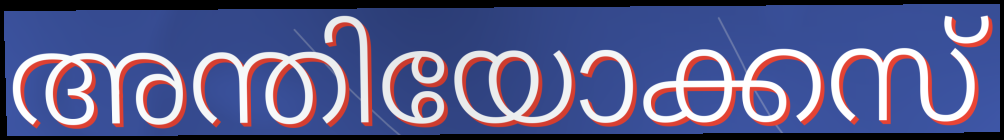
അന്തിയോക്കസ്